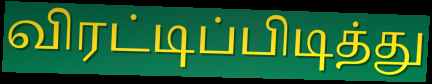
விரட்டிப்பிடித்து